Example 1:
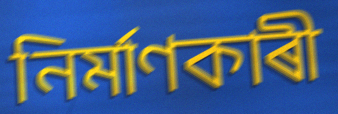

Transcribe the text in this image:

নিৰ্মাণকাৰী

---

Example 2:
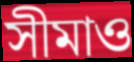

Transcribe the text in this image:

সীমাও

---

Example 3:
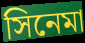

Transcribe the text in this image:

সিনেমা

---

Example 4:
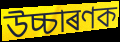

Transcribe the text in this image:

উচ্চাৰণক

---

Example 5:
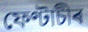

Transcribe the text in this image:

ফেণ্টাচীৰ